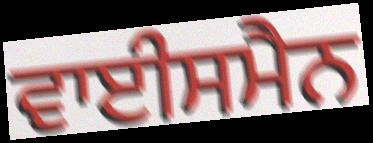
ਵਾਈਸਮੈਨ